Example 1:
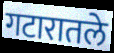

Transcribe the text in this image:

गटारातले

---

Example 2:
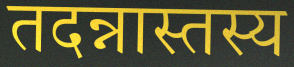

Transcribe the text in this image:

तदन्नास्तस्य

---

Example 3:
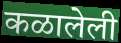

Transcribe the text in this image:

कळालेली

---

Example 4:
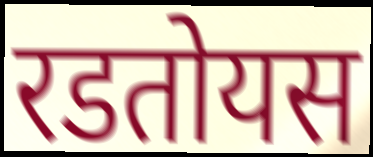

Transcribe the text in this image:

रडतोयस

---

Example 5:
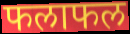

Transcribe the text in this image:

फलाफल